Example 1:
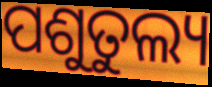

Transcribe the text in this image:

ପଶୁତୁଲ୍ୟ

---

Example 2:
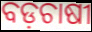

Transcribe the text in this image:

ବଡ଼ଚାଷୀ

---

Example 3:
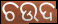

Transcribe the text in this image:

ଚଉଦ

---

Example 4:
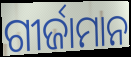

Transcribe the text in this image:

ଗୀର୍ଜାମାନ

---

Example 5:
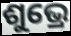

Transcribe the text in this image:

ଶୁଭ୍ରେ